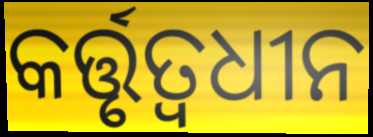
କର୍ତ୍ତୃତ୍ୱଧୀନ